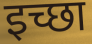
इच्छा